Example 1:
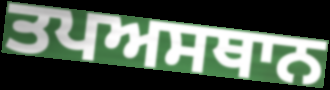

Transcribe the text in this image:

ਤਪਅਸਥਾਨ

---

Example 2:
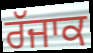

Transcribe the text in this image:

ਰੱਜਾਕ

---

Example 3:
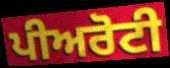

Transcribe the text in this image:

ਪੀਅਰੋਟੀ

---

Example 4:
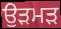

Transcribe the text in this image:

ਉੜਮੜ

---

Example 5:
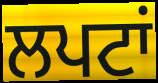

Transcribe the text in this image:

ਲਪਟਾਂ